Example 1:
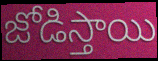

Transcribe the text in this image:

జోడిస్తాయి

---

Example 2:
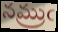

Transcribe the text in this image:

నమ్రుఁ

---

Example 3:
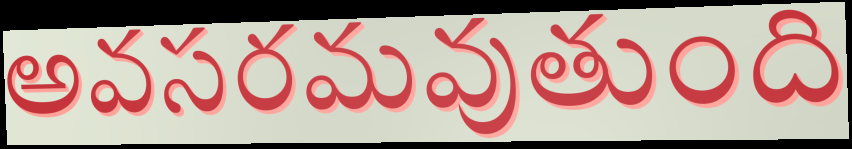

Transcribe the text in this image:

అవసరమవుతుంది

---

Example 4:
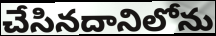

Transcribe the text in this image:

చేసినదానిలోను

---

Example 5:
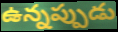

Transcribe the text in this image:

ఉన్నప్పుడు